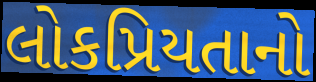
લોકપ્રિયતાનો